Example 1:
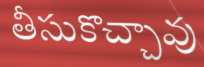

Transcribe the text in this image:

తీసుకొచ్చావు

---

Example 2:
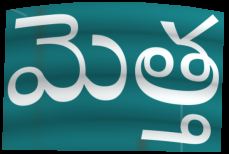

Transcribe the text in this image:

మెత్త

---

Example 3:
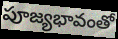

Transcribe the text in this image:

పూజ్యభావంతో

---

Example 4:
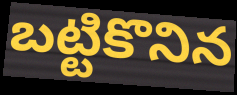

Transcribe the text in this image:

బట్టికొనిన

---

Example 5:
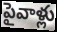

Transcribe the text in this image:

పైవాళ్లు